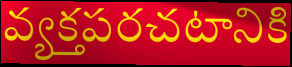
వ్యక్తపరచటానికి